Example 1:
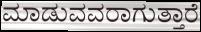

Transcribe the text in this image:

ಮಾಡುವವರಾಗುತ್ತಾರೆ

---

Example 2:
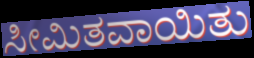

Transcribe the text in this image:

ಸೀಮಿತವಾಯಿತು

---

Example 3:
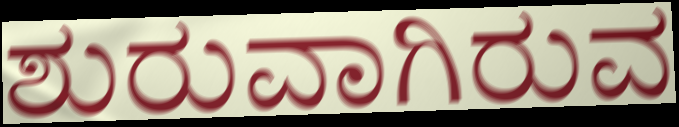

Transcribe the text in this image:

ಶುರುವಾಗಿರುವ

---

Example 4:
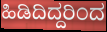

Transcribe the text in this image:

ಹಿಡಿದಿದ್ದರಿಂದ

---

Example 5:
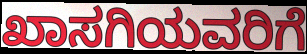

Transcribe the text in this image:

ಖಾಸಗಿಯವರಿಗೆ